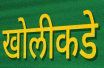
खोलीकडे